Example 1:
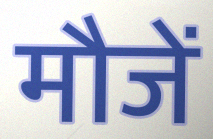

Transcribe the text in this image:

मौजें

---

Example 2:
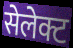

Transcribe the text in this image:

सेलेक्ट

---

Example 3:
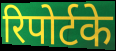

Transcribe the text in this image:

रिपोर्टके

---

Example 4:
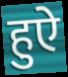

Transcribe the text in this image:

हुऐ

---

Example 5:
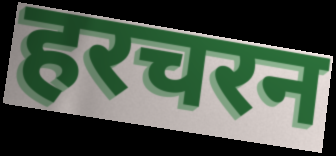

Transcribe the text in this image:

हरचरन